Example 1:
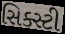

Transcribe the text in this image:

સિક્સ્ટી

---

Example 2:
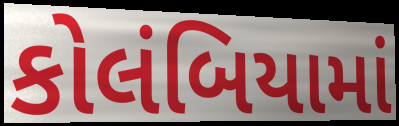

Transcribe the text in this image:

કોલંબિયામાં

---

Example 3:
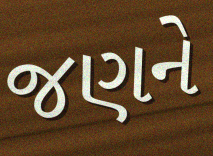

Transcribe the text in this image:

જણને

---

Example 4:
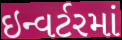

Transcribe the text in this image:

ઇન્વર્ટરમાં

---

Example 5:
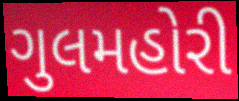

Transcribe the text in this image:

ગુલમહોરી